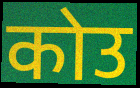
कोउ